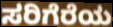
ಸರಿಗೆರೆಯ